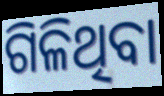
ଗିଳିଥିବା